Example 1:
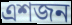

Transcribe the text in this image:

এশজন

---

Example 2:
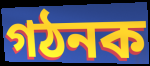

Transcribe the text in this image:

গঠনক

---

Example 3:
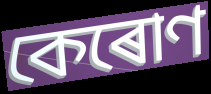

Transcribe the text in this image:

কেৰোণ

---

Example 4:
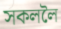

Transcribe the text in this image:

সকললৈ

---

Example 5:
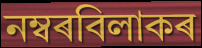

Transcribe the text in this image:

নম্বৰবিলাকৰ